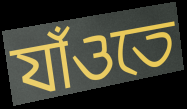
যাঁওতে